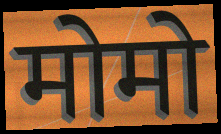
मोमो